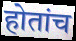
होतांच